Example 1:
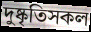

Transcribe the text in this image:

দুষ্কৃতিসকল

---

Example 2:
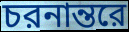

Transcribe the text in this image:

চরনান্তরে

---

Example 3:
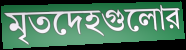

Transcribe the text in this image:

মৃতদেহগুলোর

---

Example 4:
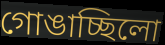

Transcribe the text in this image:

গোঙাচ্ছিলো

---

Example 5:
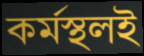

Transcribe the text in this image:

কর্মস্থলই